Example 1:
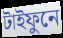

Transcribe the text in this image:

টাইফুনে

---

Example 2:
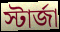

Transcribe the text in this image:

স্টার্জা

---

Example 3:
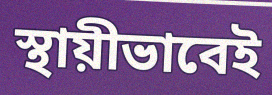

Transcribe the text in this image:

স্থায়ীভাবেই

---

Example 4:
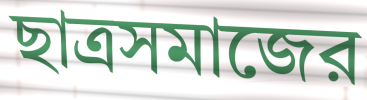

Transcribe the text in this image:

ছাত্রসমাজের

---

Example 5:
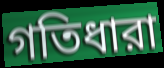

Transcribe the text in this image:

গতিধারা